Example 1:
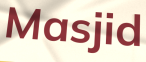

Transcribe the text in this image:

Masjid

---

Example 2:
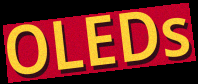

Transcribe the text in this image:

OLEDs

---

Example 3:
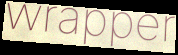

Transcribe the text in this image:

wrapper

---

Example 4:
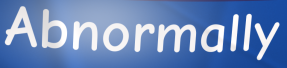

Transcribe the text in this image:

Abnormally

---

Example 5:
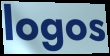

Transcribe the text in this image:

logos